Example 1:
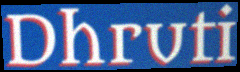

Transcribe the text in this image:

Dhruti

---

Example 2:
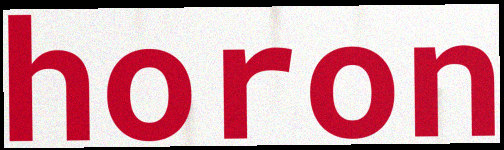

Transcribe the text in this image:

horon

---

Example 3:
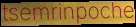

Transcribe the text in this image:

tsemrinpoche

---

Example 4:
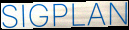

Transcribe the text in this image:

SIGPLAN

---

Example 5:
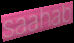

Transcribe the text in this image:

saahab